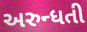
અરુન્ધતી